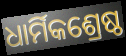
ଧାର୍ମିକଶ୍ରେଷ୍ଠ